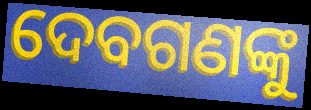
ଦେବଗଣଙ୍କୁ